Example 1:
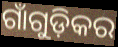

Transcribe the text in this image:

ଗାଁଗୁଡ଼ିକର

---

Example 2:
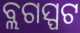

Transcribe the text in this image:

ବ୍ଲଗସ୍ପଟ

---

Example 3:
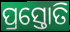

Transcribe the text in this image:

ପ୍ରସ୍ତୋତି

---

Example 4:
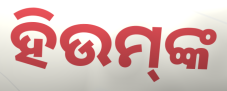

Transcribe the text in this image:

ହିଉମ୍‌ଙ୍କ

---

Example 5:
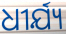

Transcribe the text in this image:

ଧୀର୍ଯ୍ୟ